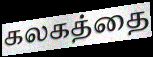
கலகத்தை